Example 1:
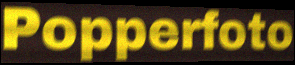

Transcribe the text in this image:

Popperfoto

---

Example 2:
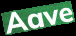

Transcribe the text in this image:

Aave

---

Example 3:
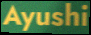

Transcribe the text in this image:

Ayushi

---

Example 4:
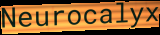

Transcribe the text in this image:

Neurocalyx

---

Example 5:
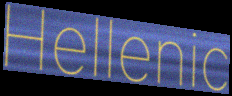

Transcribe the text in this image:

Hellenic